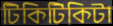
টিকিটিকিটা